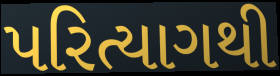
પરિત્યાગથી